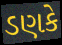
ડણકે